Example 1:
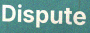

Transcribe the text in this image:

Dispute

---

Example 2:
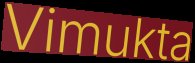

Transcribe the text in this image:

Vimukta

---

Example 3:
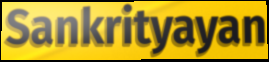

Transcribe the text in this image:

Sankrityayan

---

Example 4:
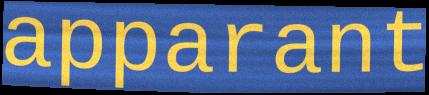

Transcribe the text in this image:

apparant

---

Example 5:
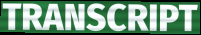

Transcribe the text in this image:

TRANSCRIPT